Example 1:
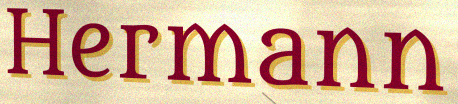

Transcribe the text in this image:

Hermann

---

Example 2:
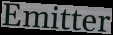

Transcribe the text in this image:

Emitter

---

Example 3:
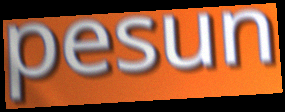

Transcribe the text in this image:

pesun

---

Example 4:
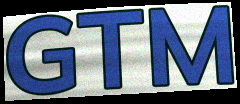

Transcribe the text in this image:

GTM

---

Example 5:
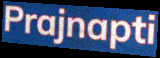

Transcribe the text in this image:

Prajnapti